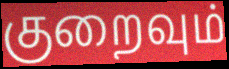
குறைவும்